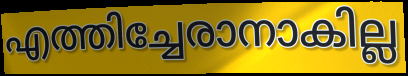
എത്തിച്ചേരാനാകില്ല